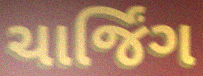
ચાર્જિંગ